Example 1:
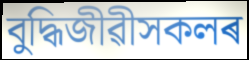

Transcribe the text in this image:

বুদ্ধিজীৱীসকলৰ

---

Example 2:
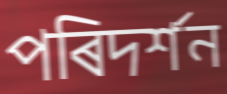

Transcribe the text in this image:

পৰিদৰ্শন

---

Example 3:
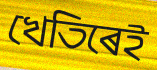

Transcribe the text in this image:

খেতিৰেই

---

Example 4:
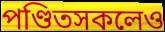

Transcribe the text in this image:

পণ্ডিতসকলেও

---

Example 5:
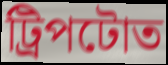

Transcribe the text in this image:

ট্ৰিপটোত